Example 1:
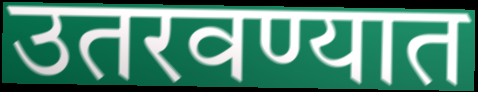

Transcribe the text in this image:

उतरवण्यात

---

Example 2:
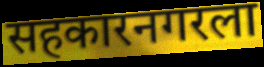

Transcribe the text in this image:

सहकारनगरला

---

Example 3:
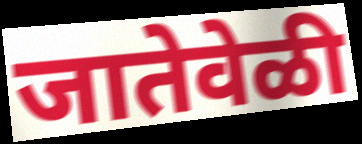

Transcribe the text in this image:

जातेवेळी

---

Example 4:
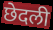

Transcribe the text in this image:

छेदली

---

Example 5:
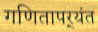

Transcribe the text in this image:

गणितापर्यंत